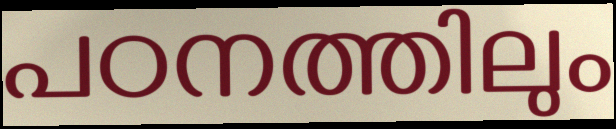
പഠനത്തിലും